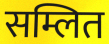
सम्लित